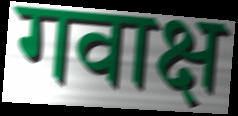
गवाक्ष